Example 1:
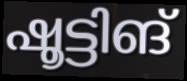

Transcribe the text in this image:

ഷൂട്ടിങ്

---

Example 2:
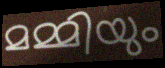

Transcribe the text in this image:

മമ്മിയും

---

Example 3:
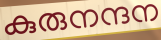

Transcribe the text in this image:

കുരുനന്ദന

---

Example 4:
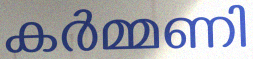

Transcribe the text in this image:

കർമ്മണി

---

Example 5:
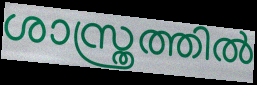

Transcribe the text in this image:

ശാസ്ത്രത്തിൽ